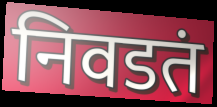
निवडतं